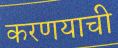
करणयाची